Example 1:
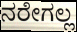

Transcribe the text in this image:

ನರೇಗಲ್ಲ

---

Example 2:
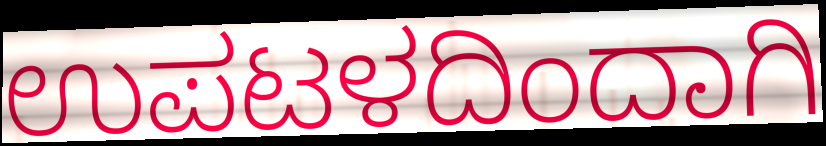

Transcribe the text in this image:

ಉಪಟಳದಿಂದಾಗಿ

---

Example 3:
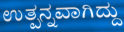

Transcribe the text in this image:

ಉತ್ಪನ್ನವಾಗಿದ್ದು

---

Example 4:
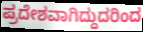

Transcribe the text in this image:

ಪ್ರದೇಶವಾಗಿದ್ದುದರಿಂದ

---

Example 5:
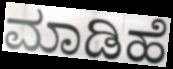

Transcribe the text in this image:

ಮಾಡಿಹೆ